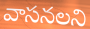
వాసనలని